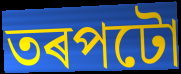
তৰপটো